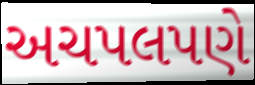
અચપલપણે